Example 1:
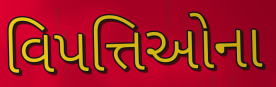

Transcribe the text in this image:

વિપત્તિઓના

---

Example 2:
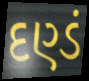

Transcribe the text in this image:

દણ્ડં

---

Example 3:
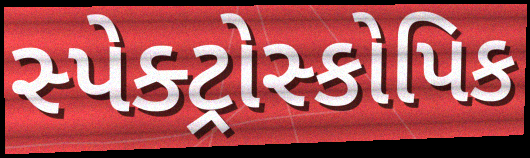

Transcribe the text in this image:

સ્પેક્ટ્રોસ્કોપિક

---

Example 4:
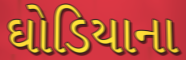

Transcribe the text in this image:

ઘોડિયાના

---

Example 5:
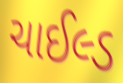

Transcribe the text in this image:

ચાઈલ્ડ